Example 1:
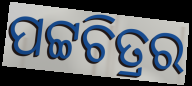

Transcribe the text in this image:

ପଟ୍ଟଚିତ୍ରର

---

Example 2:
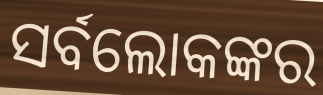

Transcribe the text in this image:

ସର୍ବଲୋକଙ୍କର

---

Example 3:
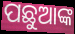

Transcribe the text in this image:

ପଛୁଆଙ୍କ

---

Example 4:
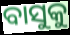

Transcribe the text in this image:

ବାସୁକୁ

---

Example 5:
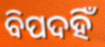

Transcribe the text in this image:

ବିପଦହିଁ